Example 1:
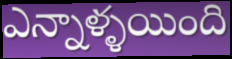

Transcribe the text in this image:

ఎన్నాళ్ళయింది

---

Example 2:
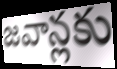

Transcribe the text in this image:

జవాన్లకు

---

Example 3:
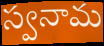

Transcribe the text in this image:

స్వనామ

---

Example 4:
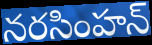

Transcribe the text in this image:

నరసింహన్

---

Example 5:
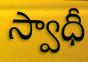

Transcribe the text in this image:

స్వాధీ